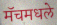
मॅचमधले